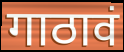
गाठावं